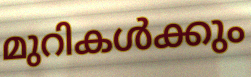
മുറികൾക്കും